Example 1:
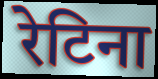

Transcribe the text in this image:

रेटिना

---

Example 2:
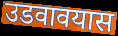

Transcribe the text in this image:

उडवावयास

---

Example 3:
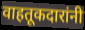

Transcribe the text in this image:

वाहतूकदारांनी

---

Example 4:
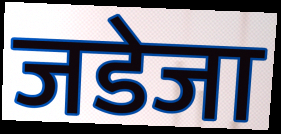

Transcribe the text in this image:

जडेजा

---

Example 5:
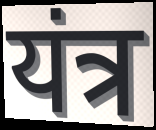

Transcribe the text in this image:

यंत्र